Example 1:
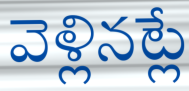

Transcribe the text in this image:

వెళ్లినట్లే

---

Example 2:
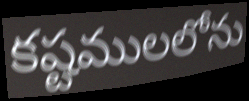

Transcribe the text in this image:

కష్టములలోను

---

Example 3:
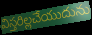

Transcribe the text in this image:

విస్తరిల్లచేయుదును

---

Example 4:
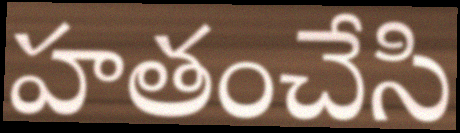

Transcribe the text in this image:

హతంచేసి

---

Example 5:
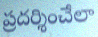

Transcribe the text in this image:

ప్రదర్శించేలా